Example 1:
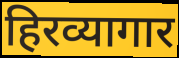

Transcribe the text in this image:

हिरव्यागार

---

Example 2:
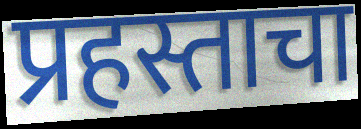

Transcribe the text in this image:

प्रहस्ताचा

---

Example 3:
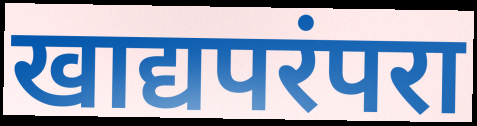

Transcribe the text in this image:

खाद्यपरंपरा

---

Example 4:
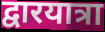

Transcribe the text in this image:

द्वारयात्रा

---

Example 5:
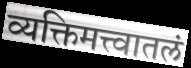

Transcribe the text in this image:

व्यक्तिमत्त्वातलं